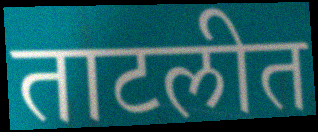
ताटलीत